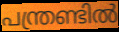
പന്ത്രണ്ടിൽ